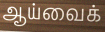
ஆய்வைக்